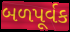
બળપૂર્વક